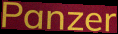
Panzer